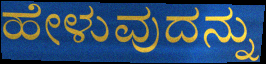
ಹೇಳುವುದನ್ನು